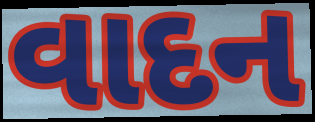
વાદન